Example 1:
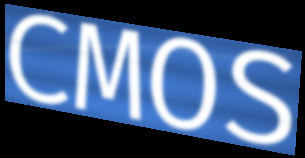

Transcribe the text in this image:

CMOS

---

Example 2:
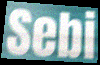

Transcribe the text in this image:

Sebi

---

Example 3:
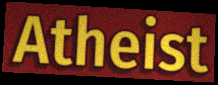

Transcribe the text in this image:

Atheist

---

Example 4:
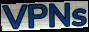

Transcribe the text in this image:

VPNs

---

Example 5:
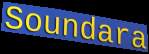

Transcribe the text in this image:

Soundara